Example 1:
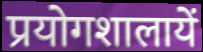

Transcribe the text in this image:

प्रयोगशालायें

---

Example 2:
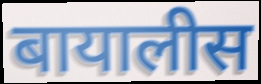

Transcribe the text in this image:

बायालीस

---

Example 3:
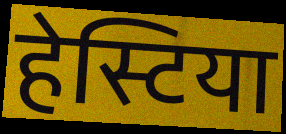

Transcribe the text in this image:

हेस्टिया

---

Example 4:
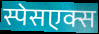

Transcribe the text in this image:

स्पेसएक्स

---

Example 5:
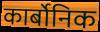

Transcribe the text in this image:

कार्बोनिक